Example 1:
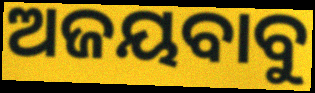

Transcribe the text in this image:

ଅଜୟବାବୁ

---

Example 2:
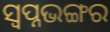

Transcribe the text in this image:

ସ୍ୱପ୍ନଭଙ୍ଗର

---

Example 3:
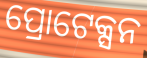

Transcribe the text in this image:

ପ୍ରୋଟେକ୍ସନ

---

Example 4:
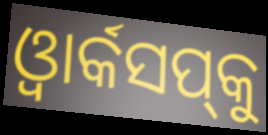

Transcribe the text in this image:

ଓ୍ୱାର୍କସପ୍‌କୁ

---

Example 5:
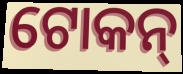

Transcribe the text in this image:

ଟୋକନ୍